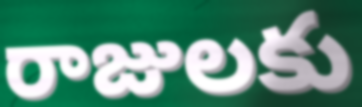
రాజులకు